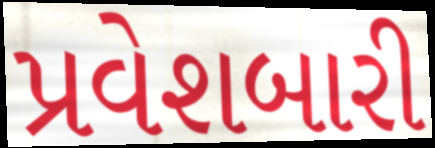
પ્રવેશબારી